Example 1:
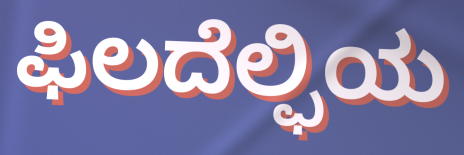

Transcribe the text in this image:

ಫಿಲದೆಲ್ಫಿಯ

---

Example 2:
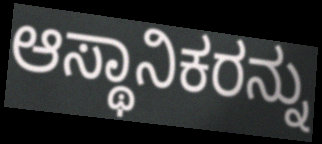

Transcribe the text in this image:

ಆಸ್ಥಾನಿಕರನ್ನು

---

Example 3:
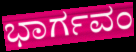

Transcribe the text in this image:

ಭಾರ್ಗವಂ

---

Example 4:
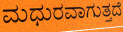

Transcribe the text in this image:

ಮಧುರವಾಗುತ್ತದೆ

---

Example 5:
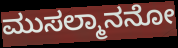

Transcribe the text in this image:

ಮುಸಲ್ಮಾನನೋ